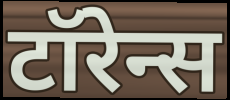
टॉरेन्स